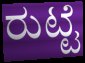
ರುಟ್ಟೆ